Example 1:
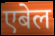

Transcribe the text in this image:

एबेल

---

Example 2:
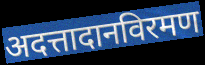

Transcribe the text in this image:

अदत्तादानविरमण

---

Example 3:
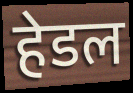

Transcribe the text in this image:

हेडल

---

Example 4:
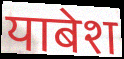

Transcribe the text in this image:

याबेश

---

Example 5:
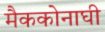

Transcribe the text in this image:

मैककोनाघी